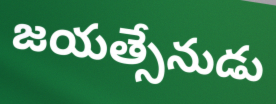
జయత్సేనుడు